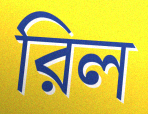
রিল